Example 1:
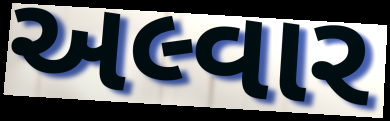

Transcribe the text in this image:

અલ્વાર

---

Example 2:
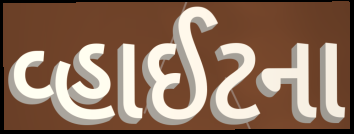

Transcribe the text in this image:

વ્હાઈટના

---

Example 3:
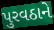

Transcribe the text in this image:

પુરવઠાને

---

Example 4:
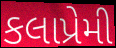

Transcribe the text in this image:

કલાપ્રેમી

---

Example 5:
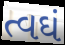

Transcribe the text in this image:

ત્વઘં